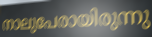
നാലുപേരായിരുന്നു